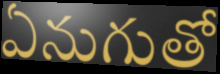
ఏనుగుతో